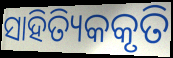
ସାହିତ୍ୟିକକୃତି